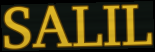
SALIL